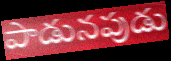
పాడునపుడు